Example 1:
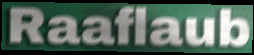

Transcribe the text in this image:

Raaflaub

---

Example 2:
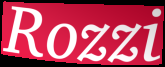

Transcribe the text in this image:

Rozzi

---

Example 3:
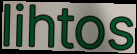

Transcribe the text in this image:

lihtos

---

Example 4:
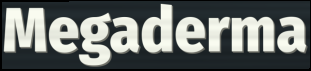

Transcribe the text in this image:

Megaderma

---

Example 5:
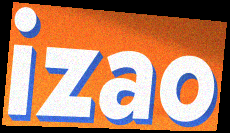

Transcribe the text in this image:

izao